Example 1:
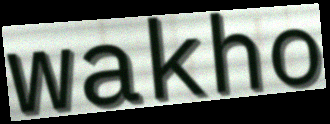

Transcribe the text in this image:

wakho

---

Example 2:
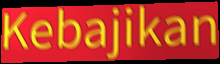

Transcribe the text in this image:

Kebajikan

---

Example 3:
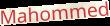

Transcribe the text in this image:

Mahommed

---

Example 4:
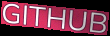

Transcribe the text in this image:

GITHUB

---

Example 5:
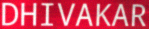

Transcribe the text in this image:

DHIVAKAR